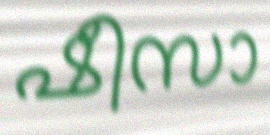
ഷീസാ